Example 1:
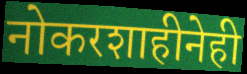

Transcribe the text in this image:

नोकरशाहीनेही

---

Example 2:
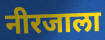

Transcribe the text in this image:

नीरजाला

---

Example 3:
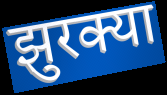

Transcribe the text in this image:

झुरक्या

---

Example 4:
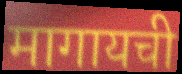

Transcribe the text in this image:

मागायची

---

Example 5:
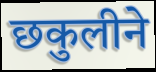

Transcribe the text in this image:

छकुलीने